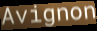
Avignon